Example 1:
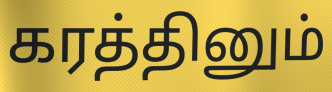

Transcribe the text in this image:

கரத்தினும்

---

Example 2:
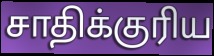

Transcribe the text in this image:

சாதிக்குரிய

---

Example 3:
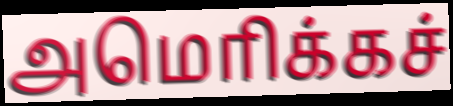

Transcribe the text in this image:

அமெரிக்கச்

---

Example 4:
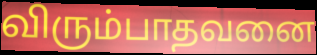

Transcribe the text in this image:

விரும்பாதவனை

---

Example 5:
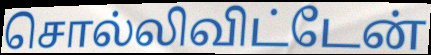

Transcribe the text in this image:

சொல்லிவிட்டேன்